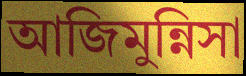
আজিমুন্নিসা